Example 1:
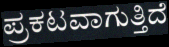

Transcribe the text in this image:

ಪ್ರಕಟವಾಗುತ್ತಿದೆ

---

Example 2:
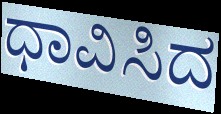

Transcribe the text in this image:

ಧಾವಿಸಿದ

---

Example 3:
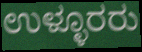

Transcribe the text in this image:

ಉಳ್ಳೂರರು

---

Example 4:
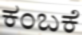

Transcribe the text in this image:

ಕಂಬಕೆ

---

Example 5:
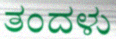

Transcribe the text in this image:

ತಂದಳು